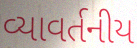
વ્યાવર્તનીય